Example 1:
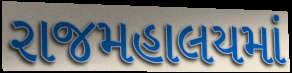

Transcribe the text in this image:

રાજમહાલયમાં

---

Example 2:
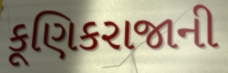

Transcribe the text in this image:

કૂણિકરાજાની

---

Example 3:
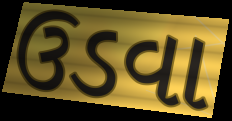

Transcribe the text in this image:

ઉડવા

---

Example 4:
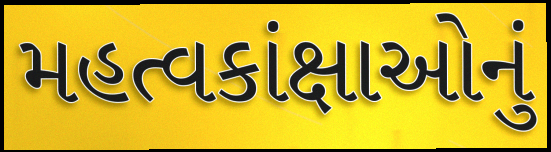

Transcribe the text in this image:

મહત્વકાંક્ષાઓનું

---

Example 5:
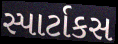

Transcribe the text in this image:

સ્પાર્ટાકસ